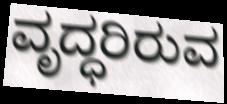
ವೃದ್ಧರಿರುವ